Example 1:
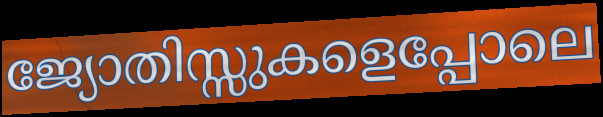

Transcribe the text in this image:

ജ്യോതിസ്സുകളെപ്പോലെ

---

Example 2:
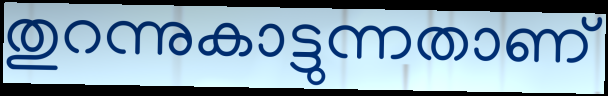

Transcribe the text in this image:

തുറന്നുകാട്ടുന്നതാണ്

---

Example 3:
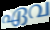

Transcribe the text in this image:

ഏവ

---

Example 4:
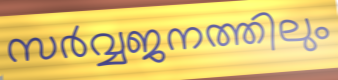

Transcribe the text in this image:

സർവ്വജനത്തിലും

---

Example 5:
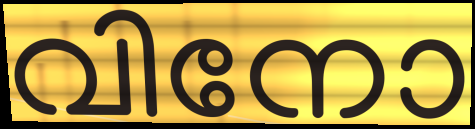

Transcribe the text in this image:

വിനോ